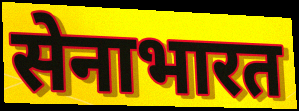
सेनाभारत